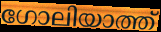
ഗോലിയാത്ത്